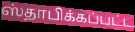
ஸ்தாபிக்கப்பட்ட